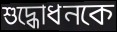
শুদ্ধোধনকে